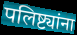
पलिष्ट्यांना